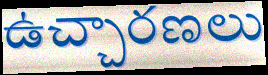
ఉచ్చారణలు